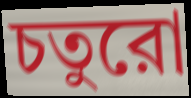
চতুরো